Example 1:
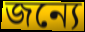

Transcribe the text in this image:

জন্যে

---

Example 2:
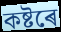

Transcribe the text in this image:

কষ্টৰে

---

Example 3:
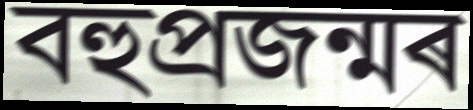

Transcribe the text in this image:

বহুপ্ৰজন্মৰ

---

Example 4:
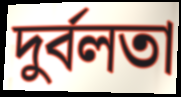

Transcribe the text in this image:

দুৰ্বলতা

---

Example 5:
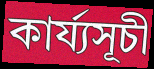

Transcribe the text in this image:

কাৰ্য্যসূচী